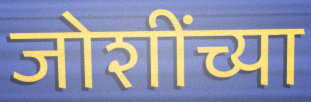
जोशींच्या